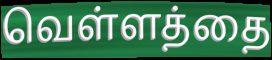
வெள்ளத்தை